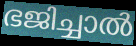
ഭജിച്ചാൽ